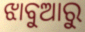
ଝାବୁଆରୁ